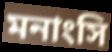
মনাংসি